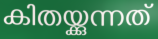
കിതയ്ക്കുന്നത്